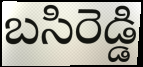
బసిరెడ్డి